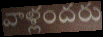
వాళ్లందరు